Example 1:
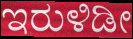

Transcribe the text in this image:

ಇರುಳಿಡೀ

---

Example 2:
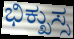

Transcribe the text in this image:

ಭಿಕ್ಖುಸ್ಸ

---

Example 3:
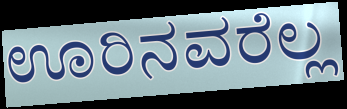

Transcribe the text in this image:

ಊರಿನವರೆಲ್ಲ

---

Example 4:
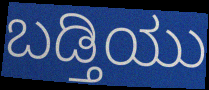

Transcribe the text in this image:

ಬಡ್ತಿಯು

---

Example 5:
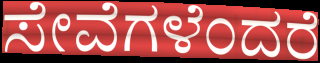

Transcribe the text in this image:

ಸೇವೆಗಳೆಂದರೆ